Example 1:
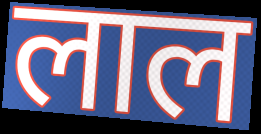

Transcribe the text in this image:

लाल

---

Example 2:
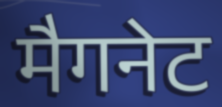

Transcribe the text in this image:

मैगनेट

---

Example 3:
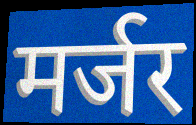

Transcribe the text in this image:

मर्जर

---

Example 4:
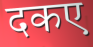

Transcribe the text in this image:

दकए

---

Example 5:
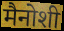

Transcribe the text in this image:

मैनोशी